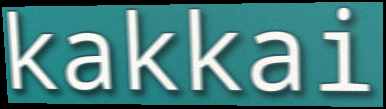
kakkai